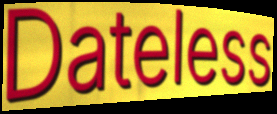
Dateless